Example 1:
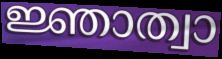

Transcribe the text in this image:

ജ്ഞാത്വാ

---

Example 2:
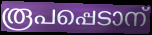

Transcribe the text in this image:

രൂപപ്പെടാന്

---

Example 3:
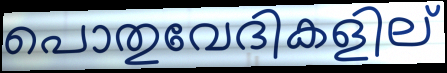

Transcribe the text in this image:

പൊതുവേദികളില്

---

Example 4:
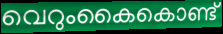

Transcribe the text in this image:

വെറുംകൈകൊണ്ട്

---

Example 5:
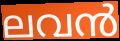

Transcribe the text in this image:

ലവൻ